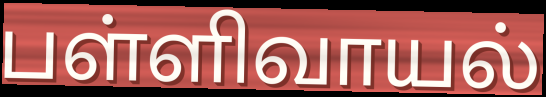
பள்ளிவாயல்